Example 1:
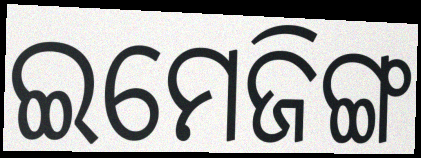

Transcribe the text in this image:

ଇମେଜିଙ୍ଗ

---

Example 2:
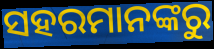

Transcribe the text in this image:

ସହରମାନଙ୍କରୁ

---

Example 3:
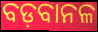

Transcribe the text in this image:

ବଡ଼ବାନଳ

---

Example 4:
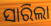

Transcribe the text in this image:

ସାରିଲା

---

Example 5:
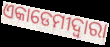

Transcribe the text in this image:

ଏକାଡେମୀଦ୍ୱାରା